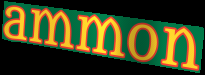
ammon